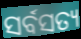
ସର୍ବସତ୍ୟ